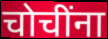
चोचींना